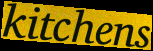
kitchens